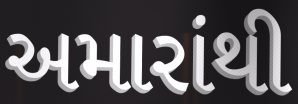
અમારાંથી